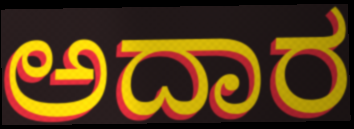
ಅದಾರ